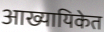
आख्यायिकेत